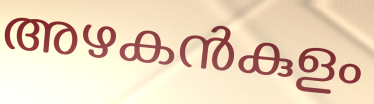
അഴകൻകുളം